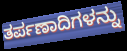
ತರ್ಪಣಾದಿಗಳನ್ನು